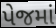
પેજમાં